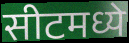
सीटमध्ये